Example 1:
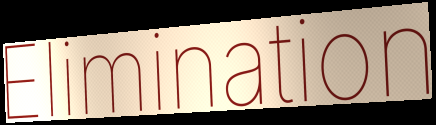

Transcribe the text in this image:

Elimination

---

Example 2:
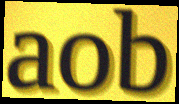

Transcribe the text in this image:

aob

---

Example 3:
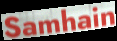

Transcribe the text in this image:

Samhain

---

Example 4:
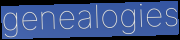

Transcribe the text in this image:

genealogies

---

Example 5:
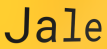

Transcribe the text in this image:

Jale